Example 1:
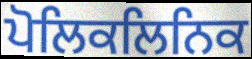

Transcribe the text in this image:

ਪੋਲਿਕਲਿਨਿਕ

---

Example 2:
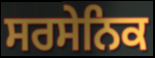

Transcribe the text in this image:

ਸਰਸੇਨਿਕ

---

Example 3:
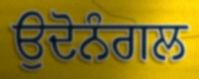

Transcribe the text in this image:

ਉਦੋਨੰਗਲ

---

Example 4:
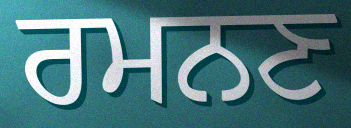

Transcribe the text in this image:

ਰਮਨਣ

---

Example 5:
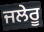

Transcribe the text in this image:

ਜਲੇਰੂ